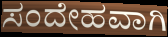
ಸಂದೇಹವಾಗಿ